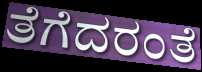
ತೆಗೆದರಂತೆ